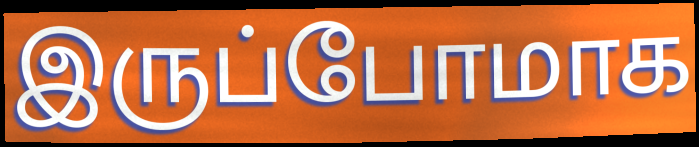
இருப்போமாக